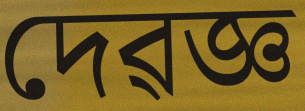
দেৱজ্ঞ